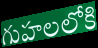
గుహలలోకి